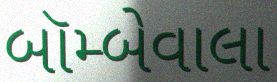
બૉમ્બેવાલા